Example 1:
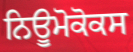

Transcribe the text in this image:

ਨਿਊਮੋਕੋਕਸ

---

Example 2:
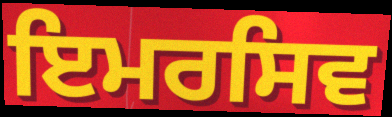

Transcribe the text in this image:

ਇਮਰਸਿਵ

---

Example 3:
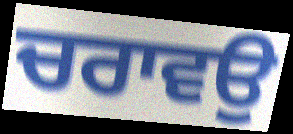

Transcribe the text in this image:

ਚਰਾਵਉ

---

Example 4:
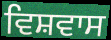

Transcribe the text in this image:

ਵਿਸ਼ਵਾਸ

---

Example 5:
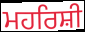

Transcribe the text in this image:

ਮਹਰਿਸ਼ੀ